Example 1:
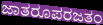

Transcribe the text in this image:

ಜಾತರೂಪರಜತಂ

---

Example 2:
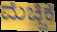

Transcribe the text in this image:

ಮೆಚ್ಚಿಕೆ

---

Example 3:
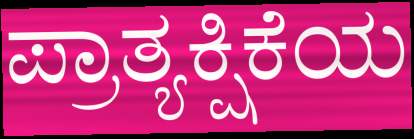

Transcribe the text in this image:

ಪ್ರಾತ್ಯಕ್ಷಿಕೆಯ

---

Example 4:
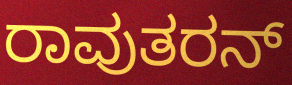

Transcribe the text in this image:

ರಾವುತರನ್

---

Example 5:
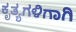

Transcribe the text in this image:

ಕೃತ್ಯಗಳಿಗಾಗಿ